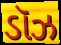
ડૉઝ